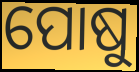
ପୋଷୁ